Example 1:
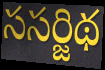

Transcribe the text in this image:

ససర్జిథ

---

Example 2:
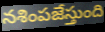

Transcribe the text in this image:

నశింపజేస్తుంది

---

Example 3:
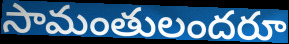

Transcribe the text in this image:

సామంతులందరూ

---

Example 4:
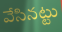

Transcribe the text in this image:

వేసినట్టు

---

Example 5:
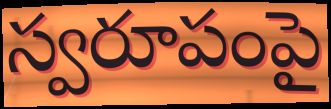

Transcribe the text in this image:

స్వరూపంపై